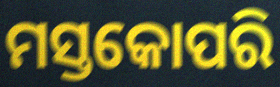
ମସ୍ତକୋପରି